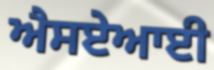
ਐਸਏਆਈ